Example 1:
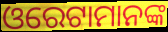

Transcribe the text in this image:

ଓରେଟାମାନଙ୍କ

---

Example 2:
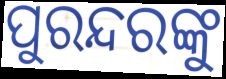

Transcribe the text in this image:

ପୁରନ୍ଦରଙ୍କୁ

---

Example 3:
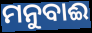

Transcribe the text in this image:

ମନୁବାଈ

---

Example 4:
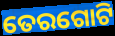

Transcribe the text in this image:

ତେରଗୋଟି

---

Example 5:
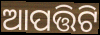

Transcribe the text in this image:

ଆପତ୍ତିଟି